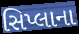
સિપ્લાના